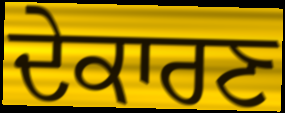
ਦੇਕਾਰਣ